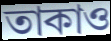
তাকাও